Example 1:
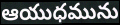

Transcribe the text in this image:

ఆయుధమును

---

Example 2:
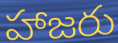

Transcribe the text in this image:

హాజరు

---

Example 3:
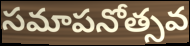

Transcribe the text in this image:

సమాపనోత్సవ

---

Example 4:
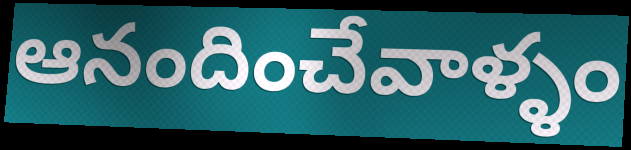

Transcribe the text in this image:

ఆనందించేవాళ్ళం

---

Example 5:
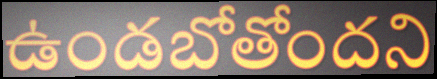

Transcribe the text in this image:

ఉండబోతోందని